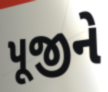
પૂજીને